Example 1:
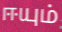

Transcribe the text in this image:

ஈயும்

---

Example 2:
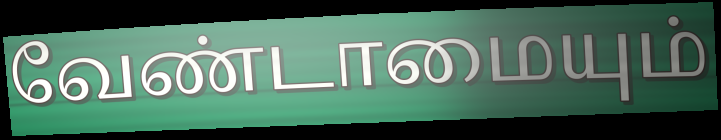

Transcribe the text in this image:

வேண்டாமையும்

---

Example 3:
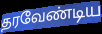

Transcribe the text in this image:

தரவேண்டிய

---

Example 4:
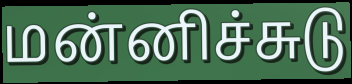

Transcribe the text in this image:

மன்னிச்சுடு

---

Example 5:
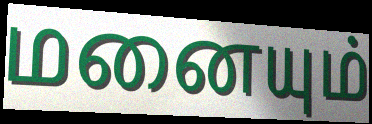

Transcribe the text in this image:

மனையும்